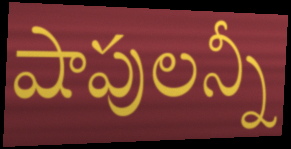
షాపులన్నీ